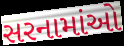
સરનામાંઓ